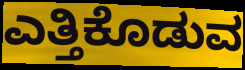
ಎತ್ತಿಕೊಡುವ